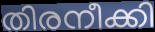
തിരനീക്കി